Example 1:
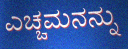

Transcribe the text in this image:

ಎಚ್ಚಮನನ್ನು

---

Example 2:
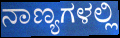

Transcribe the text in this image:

ನಾಣ್ಯಗಳಲ್ಲಿ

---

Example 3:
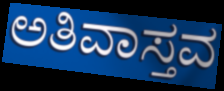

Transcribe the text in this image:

ಅತಿವಾಸ್ತವ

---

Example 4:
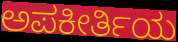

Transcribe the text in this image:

ಅಪಕೀರ್ತಿಯ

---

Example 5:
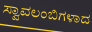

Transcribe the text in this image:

ಸ್ವಾವಲಂಬಿಗಳಾದ